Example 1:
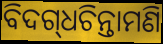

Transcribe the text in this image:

ବିଦଗ୍‌ଧଚିନ୍ତାମଣି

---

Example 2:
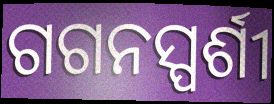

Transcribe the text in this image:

ଗଗନସ୍ପର୍ଶୀ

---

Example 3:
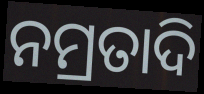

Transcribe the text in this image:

ନମ୍ରତାଦି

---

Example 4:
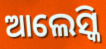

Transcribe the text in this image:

ଆଲେସ୍କି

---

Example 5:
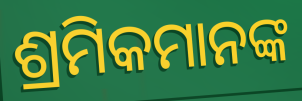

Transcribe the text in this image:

ଶ୍ରମିକମାନଙ୍କ